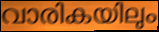
വാരികയിലും